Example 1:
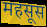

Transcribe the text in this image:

महसूस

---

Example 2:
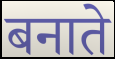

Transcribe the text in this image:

बनाते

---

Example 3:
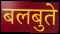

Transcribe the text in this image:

बलबुते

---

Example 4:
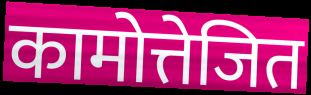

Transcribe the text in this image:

कामोत्तेजित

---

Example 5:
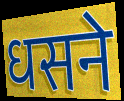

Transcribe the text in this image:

धसने